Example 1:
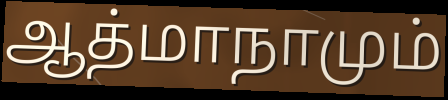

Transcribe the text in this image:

ஆத்மாநாமும்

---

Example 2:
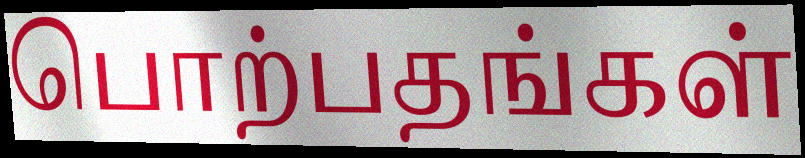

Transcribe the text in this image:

பொற்பதங்கள்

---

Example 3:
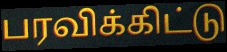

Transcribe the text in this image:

பரவிக்கிட்டு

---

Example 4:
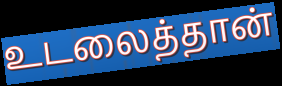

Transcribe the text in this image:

உடலைத்தான்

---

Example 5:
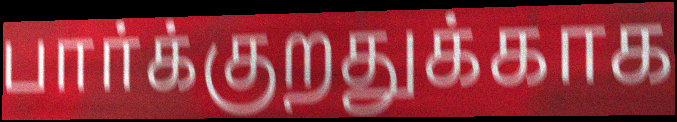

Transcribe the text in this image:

பார்க்குறதுக்காக